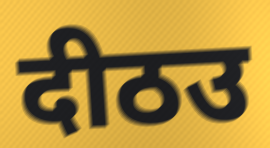
दीठउ